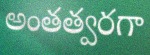
అంతత్వరగా